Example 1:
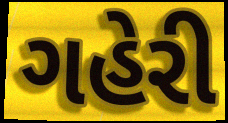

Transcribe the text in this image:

ગહેરી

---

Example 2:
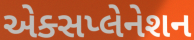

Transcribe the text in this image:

એક્સપ્લેનેશન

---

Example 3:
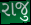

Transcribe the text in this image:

રાજુ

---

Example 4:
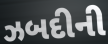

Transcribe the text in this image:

ઝબદીની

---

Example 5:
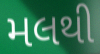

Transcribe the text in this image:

મલથી